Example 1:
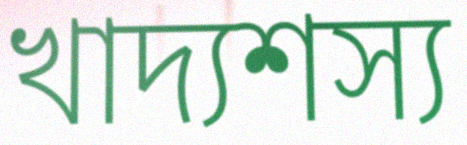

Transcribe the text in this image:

খাদ্যশস্য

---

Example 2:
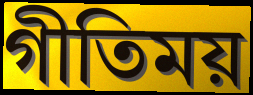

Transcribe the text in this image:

গীতিময়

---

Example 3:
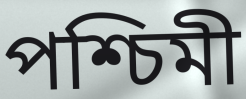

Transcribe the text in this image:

পশ্চিমী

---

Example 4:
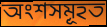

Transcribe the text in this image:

অংশসমূহত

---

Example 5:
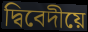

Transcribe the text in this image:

দ্বিবেদীয়ে